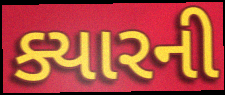
ક્યારની